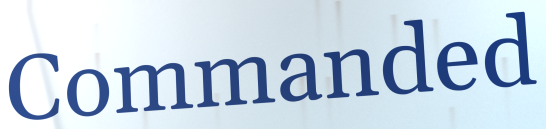
Commanded